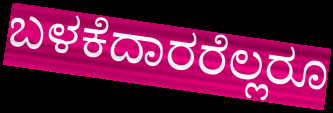
ಬಳಕೆದಾರರೆಲ್ಲರೂ